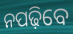
ନପଢ଼ିବେ